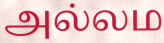
அல்லம